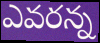
ఎవరన్న